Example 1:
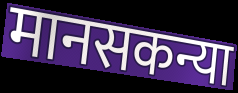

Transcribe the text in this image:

मानसकन्या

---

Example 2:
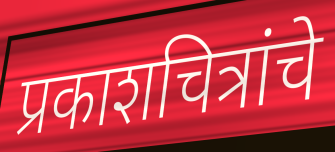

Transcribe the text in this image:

प्रकाशचित्रांचे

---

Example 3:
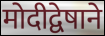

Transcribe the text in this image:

मोदीद्वेषाने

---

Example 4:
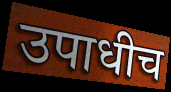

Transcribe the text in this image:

उपाधीच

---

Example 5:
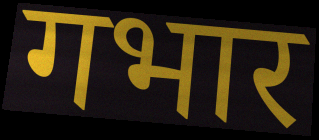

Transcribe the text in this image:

गभार